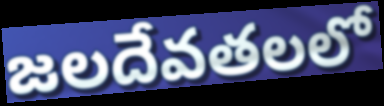
జలదేవతలలో